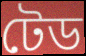
টেড